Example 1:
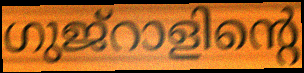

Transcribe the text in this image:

ഗുജ്റാളിന്റെ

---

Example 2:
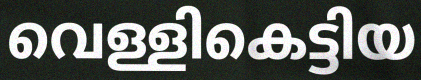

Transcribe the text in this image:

വെള്ളികെട്ടിയ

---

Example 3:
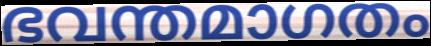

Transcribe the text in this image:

ഭവന്തമാഗതം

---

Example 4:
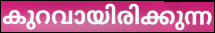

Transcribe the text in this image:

കുറവായിരിക്കുന്ന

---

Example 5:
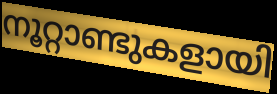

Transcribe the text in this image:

നൂറ്റാണ്ടുകളായി